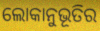
ଲୋକାନୁଭୂତିର